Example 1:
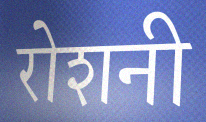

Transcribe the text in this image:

रोशनी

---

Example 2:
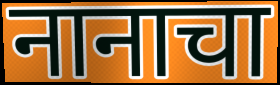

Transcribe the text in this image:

नानाचा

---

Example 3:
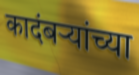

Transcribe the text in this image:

कादंबऱ्यांच्या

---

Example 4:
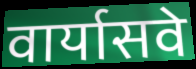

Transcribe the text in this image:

वार्यासवे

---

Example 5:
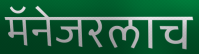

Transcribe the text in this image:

मॅनेजरलाच